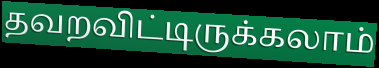
தவறவிட்டிருக்கலாம்